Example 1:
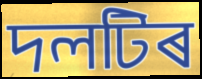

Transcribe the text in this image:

দলটিৰ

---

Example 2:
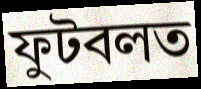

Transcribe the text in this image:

ফুটবলত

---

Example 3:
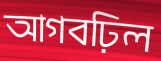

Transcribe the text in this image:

আগবঢ়িল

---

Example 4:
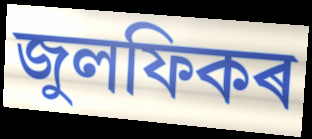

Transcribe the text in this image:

জুলফিকৰ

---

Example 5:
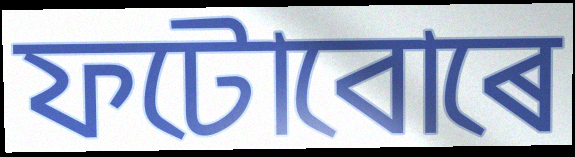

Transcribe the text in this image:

ফটোবোৰে